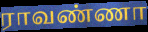
ராவண்ணா